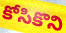
కోసికొని